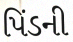
પિંડની